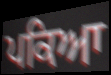
ਪਕਿਆ